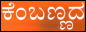
ಕೆಂಬಣ್ಣದ